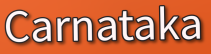
Carnataka